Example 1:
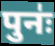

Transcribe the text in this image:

पुनः॑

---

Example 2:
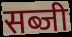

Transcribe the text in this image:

सब्जी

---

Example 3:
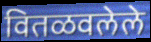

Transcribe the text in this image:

वितळवलेले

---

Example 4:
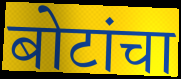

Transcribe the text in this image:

बोटांचा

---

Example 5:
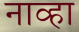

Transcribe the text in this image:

नाव्हा